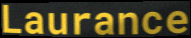
Laurance